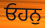
ਓਹਨੁ